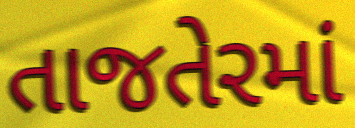
તાજતેરમાં